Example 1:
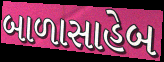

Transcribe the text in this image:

બાળાસાહેબ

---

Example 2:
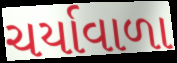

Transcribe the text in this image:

ચર્યાવાળા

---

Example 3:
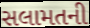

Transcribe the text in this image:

સલામતની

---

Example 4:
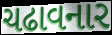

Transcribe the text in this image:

ચઢાવનાર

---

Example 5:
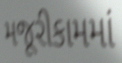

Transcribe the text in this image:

મજૂરીકામમાં